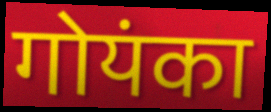
गोयंका